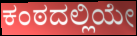
ಕಂಠದಲ್ಲಿಯೇ